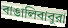
বাঙালিবাবুরা